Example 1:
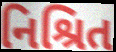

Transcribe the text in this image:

નિશ્રિત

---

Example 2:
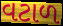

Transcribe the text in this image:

વટાળ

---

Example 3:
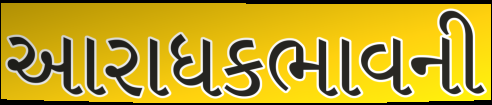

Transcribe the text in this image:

આરાધકભાવની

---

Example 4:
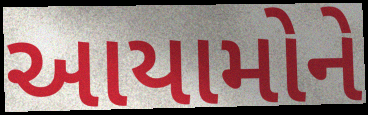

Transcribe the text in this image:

આયામોને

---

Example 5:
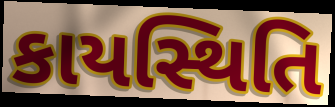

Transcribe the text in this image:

કાયસ્થિતિ